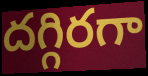
దగ్గిరగా